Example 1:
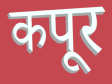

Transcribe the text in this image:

कपूर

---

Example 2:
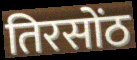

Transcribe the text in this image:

तिरसोंठ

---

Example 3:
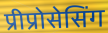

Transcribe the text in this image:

प्रीप्रोसेसिंग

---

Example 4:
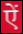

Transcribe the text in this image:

ऐं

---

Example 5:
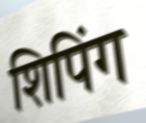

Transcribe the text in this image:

शिपिंग